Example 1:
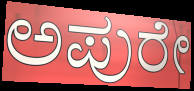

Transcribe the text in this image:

ಅಪುರೇ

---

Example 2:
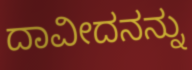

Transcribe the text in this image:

ದಾವೀದನನ್ನು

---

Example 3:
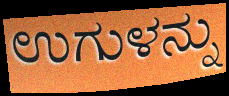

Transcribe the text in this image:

ಉಗುಳನ್ನು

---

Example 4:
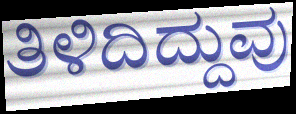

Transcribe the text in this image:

ತಿಳಿದಿದ್ದುವು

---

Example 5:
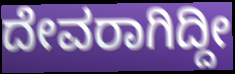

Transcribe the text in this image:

ದೇವರಾಗಿದ್ದೀ